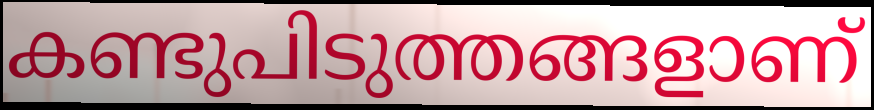
കണ്ടുപിടുത്തങ്ങളാണ്